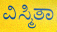
ವಿಸ್ಮಿತಾ